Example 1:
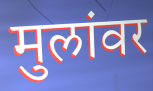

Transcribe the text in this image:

मुलांवर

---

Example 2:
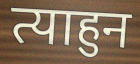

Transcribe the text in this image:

त्याहुन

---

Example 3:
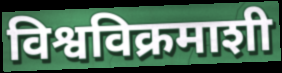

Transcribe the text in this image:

विश्वविक्रमाशी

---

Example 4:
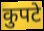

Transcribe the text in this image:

कुपटे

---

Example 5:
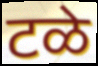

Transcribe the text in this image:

टळे